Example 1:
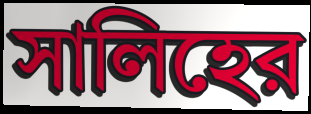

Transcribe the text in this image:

সালিহের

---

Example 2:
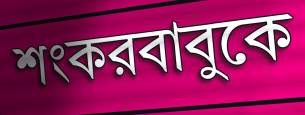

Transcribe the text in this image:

শংকরবাবুকে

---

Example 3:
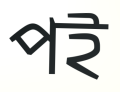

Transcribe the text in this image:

পই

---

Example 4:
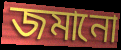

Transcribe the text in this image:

জমানো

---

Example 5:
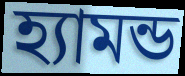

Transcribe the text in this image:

হ্যামন্ড